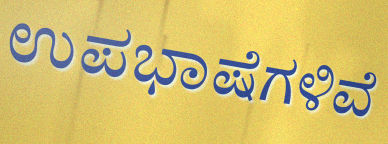
ಉಪಭಾಷೆಗಳಿವೆ